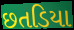
છતડિયા